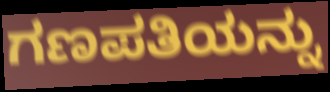
ಗಣಪತಿಯನ್ನು